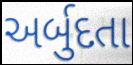
અર્બુદતા